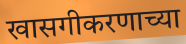
खासगीकरणाच्या